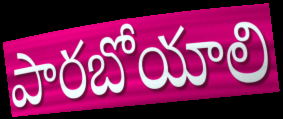
పారబోయాలి